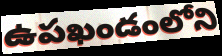
ఉపఖండంలోని